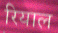
रियाल